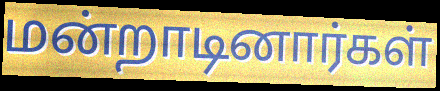
மன்றாடினார்கள்